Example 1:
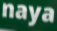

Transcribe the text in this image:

naya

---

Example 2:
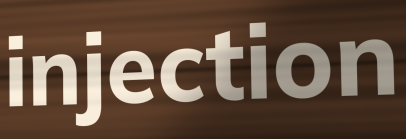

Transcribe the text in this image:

injection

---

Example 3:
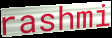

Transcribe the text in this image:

rashmi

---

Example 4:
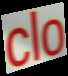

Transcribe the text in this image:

clo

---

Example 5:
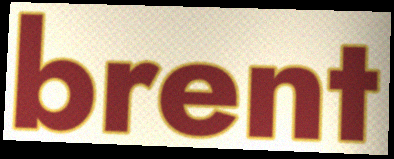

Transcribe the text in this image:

brent